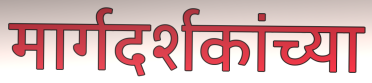
मार्गदर्शकांच्या